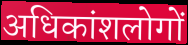
अधिकांशलोगों